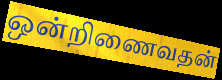
ஒன்றிணைவதன்